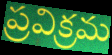
ప్రవిక్రమ